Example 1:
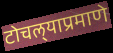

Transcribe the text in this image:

टोचल्याप्रमाणे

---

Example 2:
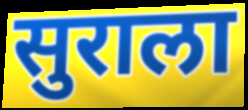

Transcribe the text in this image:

सुराला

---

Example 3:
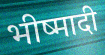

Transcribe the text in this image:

भीष्मादी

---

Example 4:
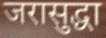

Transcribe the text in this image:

जरासुद्धा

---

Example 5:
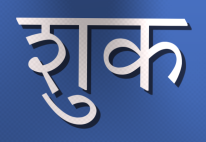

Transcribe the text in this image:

शुक